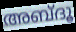
അബ്ദൂ